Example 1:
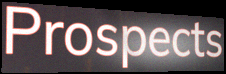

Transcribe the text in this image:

Prospects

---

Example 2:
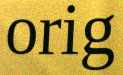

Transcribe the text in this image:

orig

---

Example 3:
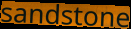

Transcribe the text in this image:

sandstone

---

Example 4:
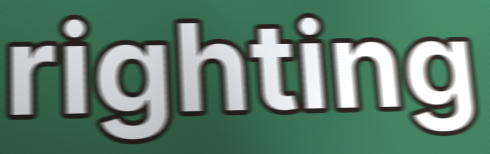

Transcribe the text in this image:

righting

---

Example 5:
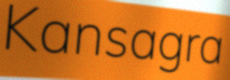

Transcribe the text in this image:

Kansagra